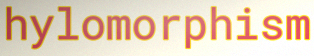
hylomorphism